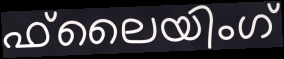
ഫ്‌ലൈയിംഗ്